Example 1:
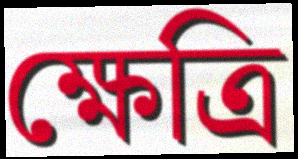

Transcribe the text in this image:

ক্ষেত্রি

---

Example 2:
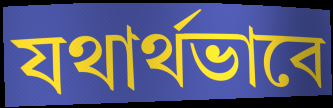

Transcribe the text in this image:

যথার্থভাবে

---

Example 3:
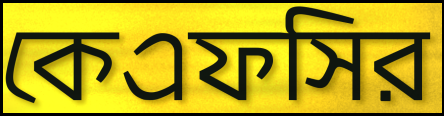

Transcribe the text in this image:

কেএফসির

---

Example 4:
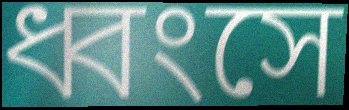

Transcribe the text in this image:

ধ্বংসে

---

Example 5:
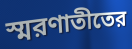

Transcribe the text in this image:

স্মরণাতীতের